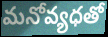
మనోవ్యధతో